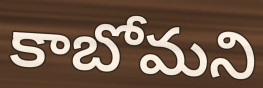
కాబోమని